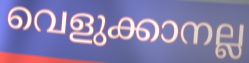
വെളുക്കാനല്ല